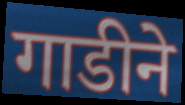
गाडीने